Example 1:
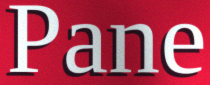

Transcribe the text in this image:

Pane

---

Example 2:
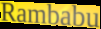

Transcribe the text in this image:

Rambabu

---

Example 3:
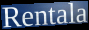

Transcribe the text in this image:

Rentala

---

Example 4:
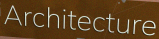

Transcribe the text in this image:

Architecture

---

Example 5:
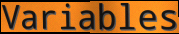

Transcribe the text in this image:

Variables